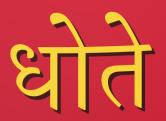
धोते